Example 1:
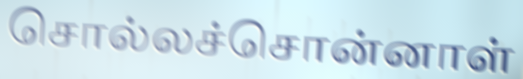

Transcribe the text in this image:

சொல்லச்சொன்னாள்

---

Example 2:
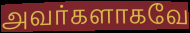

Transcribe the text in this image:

அவர்களாகவே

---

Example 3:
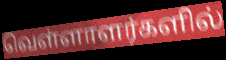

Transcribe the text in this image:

வெள்ளாளர்களில்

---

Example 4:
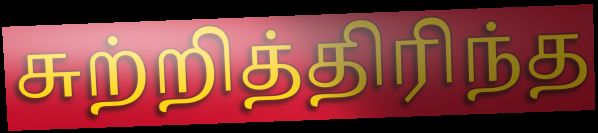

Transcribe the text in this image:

சுற்றித்திரிந்த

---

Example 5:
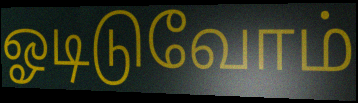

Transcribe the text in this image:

ஓடிடுவோம்